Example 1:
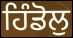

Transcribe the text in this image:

ਹਿੰਡੋਲੁ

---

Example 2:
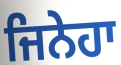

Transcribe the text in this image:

ਜਿਨੇਹਾ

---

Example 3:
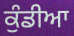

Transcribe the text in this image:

ਕੁੰਡੀਆ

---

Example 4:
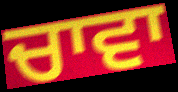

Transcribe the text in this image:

ਚਾਵਾ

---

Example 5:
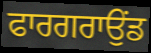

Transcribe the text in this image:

ਫਾਰਗਰਾਉਂਡ